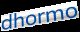
dhormo